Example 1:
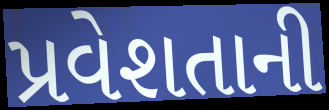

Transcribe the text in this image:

પ્રવેશતાની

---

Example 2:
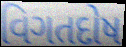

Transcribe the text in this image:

વિગતદોષ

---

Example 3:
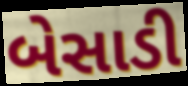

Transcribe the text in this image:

બેસાડી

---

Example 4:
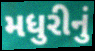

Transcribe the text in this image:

મધુરીનું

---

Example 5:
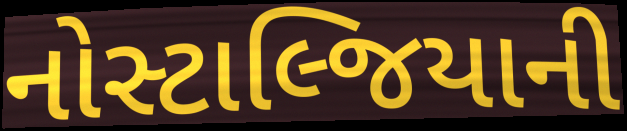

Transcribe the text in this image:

નોસ્ટાલ્જિયાની